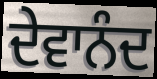
ਦੇਵਾਨੰਦ